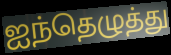
ஐந்தெழுத்து